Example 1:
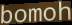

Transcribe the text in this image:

bomoh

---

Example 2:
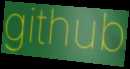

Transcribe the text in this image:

github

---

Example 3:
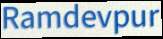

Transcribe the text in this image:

Ramdevpur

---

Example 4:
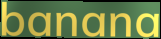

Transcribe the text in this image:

banana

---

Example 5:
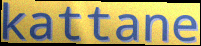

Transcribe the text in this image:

kattane